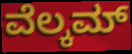
ವೆಲ್ಕಮ್